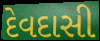
દેવદાસી